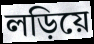
লড়িয়ে